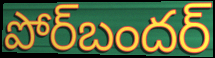
పోర్‌బందర్